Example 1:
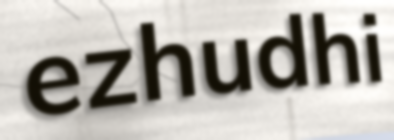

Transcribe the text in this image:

ezhudhi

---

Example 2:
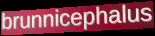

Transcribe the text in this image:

brunnicephalus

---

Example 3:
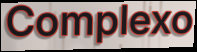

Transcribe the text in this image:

Complexo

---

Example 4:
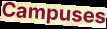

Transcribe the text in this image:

Campuses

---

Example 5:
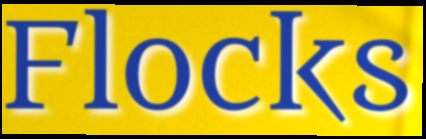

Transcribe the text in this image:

Flocks